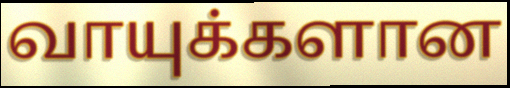
வாயுக்களான